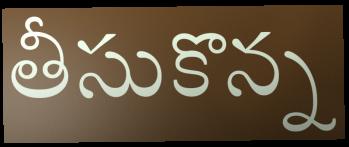
తీసుకొన్న